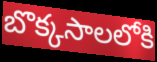
బొక్కసాలలోకి